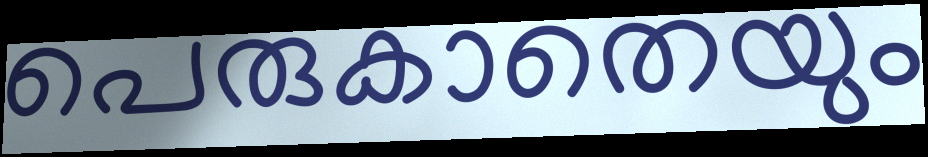
പെരുകാതെയും